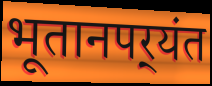
भूतानपर्यंत